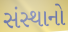
સંસ્થાનો